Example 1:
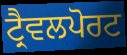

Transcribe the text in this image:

ਟ੍ਰੈਵਲਪੋਰਟ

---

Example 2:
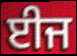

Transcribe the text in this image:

ਈਜ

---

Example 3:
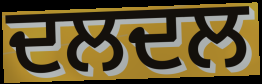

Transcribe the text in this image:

ਦਲਦਲ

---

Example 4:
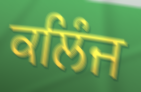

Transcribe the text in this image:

ਕਲਿੰਜ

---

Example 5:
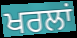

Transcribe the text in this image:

ਖਰਲਾਂ